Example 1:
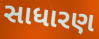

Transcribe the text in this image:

સાધારણ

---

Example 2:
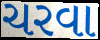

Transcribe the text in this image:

ચરવા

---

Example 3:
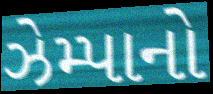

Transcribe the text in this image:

ઝેમ્પાનો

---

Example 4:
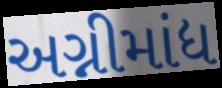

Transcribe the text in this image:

અગ્નીમાંદ્ય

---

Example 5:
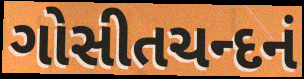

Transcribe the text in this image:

ગોસીતચન્દનં